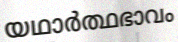
യഥാർത്ഥഭാവം